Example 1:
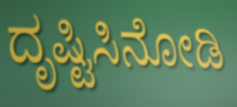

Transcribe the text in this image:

ದೃಷ್ಟಿಸಿನೋಡಿ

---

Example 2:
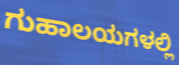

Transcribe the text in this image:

ಗುಹಾಲಯಗಳಲ್ಲಿ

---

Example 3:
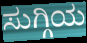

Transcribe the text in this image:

ಸುಗ್ಗಿಯ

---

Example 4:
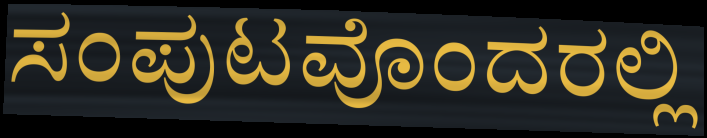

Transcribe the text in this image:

ಸಂಪುಟವೊಂದರಲ್ಲಿ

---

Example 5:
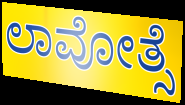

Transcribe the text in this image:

ಲಾವೋತ್ಸೆ